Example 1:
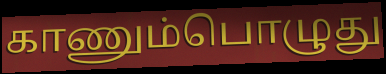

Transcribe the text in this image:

காணும்பொழுது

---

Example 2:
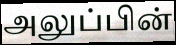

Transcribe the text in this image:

அலுப்பின்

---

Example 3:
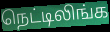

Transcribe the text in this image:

நெட்டிலிங்க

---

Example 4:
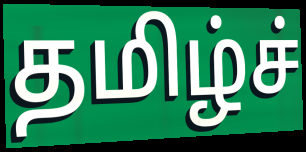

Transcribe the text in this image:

தமிழ்ச்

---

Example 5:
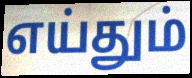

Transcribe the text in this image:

எய்தும்